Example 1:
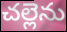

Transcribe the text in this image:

చల్లెను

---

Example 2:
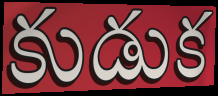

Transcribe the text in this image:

కుడుక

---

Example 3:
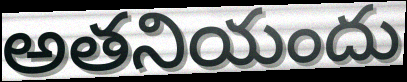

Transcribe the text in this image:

అతనియందు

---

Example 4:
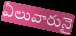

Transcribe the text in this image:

ఏలువారునై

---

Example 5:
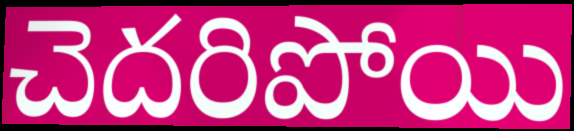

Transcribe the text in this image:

చెదరిపోయి